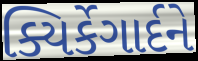
ક્યિર્કેગાર્દને